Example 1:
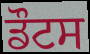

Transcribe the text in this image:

ਡੌਟਸ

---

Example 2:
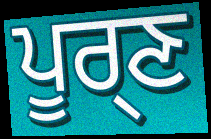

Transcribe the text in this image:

ਪੂਰ੍ਣ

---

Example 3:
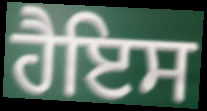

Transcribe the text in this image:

ਹੈਇਸ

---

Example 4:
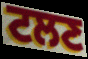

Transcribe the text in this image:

ਟਲਣ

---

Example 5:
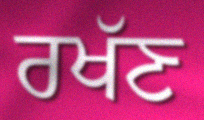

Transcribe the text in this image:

ਰਖੱਣ